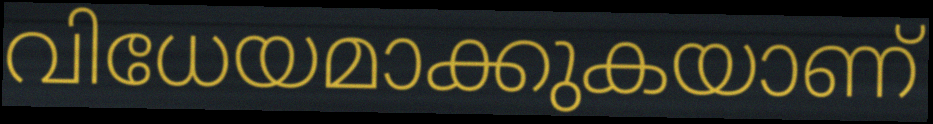
വിധേയമാക്കുകയാണ്